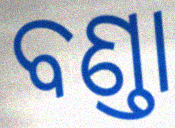
ବଣ୍ଡା